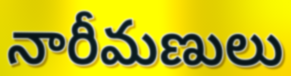
నారీమణులు